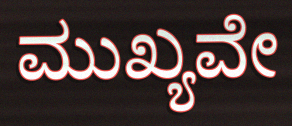
ಮುಖ್ಯವೇ